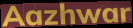
Aazhwar